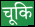
चूकि